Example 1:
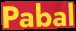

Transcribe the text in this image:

Pabal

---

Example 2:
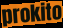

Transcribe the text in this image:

prokito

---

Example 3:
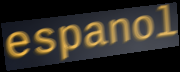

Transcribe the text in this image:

espanol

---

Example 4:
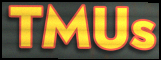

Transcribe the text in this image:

TMUs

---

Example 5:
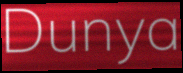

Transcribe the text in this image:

Dunya